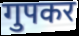
गुपकर